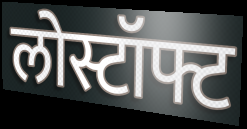
लोस्टॉफ्ट